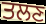
ਤਲਣ